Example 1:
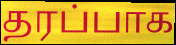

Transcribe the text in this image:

தரப்பாக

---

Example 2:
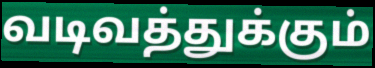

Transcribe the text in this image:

வடிவத்துக்கும்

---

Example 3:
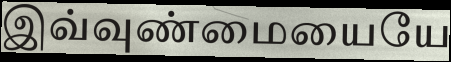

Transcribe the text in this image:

இவ்வுண்மையையே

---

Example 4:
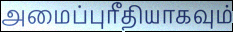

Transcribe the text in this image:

அமைப்புரீதியாகவும்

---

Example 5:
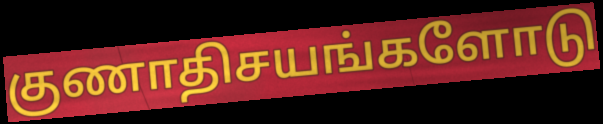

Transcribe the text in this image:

குணாதிசயங்களோடு